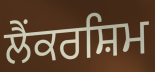
ਲੈਂਕਰਸ਼ਿਮ